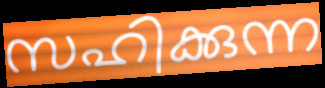
സഹിക്കുന്ന